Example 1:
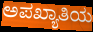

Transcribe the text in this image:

ಅಪಖ್ಯಾತಿಯ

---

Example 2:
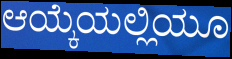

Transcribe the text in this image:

ಆಯ್ಕೆಯಲ್ಲಿಯೂ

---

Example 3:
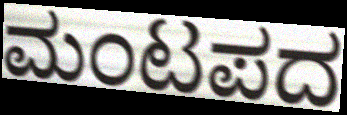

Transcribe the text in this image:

ಮಂಟಪದ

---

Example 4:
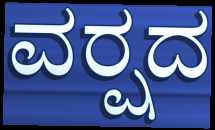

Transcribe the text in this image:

ವರ್‍ಷದ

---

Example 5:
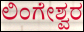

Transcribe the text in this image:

ಲಿಂಗೇಶ್ವರ